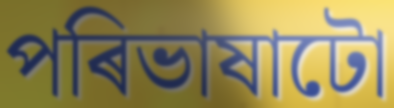
পৰিভাষাটো